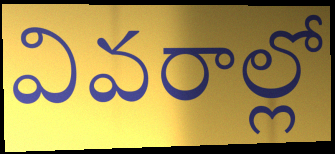
వివరాల్లో